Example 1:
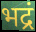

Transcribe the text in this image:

भद्रं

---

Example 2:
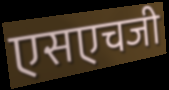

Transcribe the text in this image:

एसएचजी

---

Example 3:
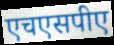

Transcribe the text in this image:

एचएसपीए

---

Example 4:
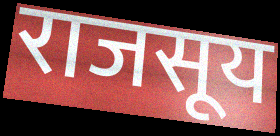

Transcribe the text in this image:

राजसूय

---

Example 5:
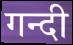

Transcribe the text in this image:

गन्दी